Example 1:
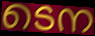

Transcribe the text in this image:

ടെന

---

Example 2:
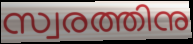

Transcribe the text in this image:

സ്വരത്തിനു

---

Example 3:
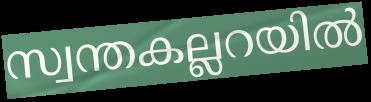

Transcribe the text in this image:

സ്വന്തകല്ലറയിൽ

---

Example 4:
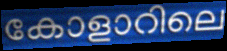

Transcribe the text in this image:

കോളാറിലെ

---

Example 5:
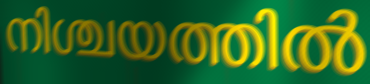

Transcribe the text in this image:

നിശ്ചയത്തിൽ